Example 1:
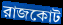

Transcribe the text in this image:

রাজকোট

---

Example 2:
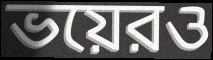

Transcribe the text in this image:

ভয়েরও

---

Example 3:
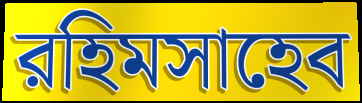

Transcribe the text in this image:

রহিমসাহেব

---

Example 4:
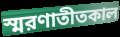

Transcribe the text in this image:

স্মরণাতীতকাল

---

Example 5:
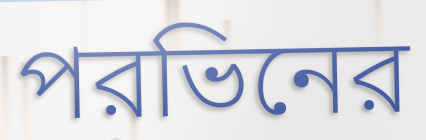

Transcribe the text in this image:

পরভিনের